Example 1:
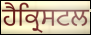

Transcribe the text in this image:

ਹੈਕ੍ਰਿਸਟਲ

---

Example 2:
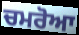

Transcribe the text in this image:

ਚਮਰੋਆ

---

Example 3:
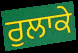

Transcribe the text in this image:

ਰੁਲਾਕੇ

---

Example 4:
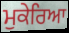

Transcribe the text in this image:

ਮੁਕੇਰਿਆ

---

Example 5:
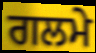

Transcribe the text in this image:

ਗਲਮੇ